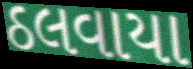
ઠલવાયા